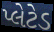
પ્લેટેડ